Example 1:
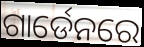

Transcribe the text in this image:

ଗାର୍ଡେନରେ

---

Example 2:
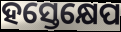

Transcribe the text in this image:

ହସ୍ତେକ୍ଷେପ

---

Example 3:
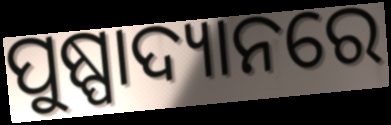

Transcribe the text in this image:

ପୁଷ୍ପାଦ୍ୟାନରେ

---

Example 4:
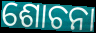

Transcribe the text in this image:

ଶୋଚନା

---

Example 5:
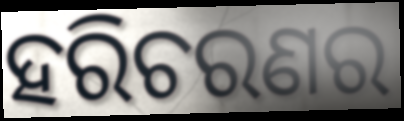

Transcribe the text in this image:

ହରିଚରଣର